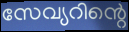
സേവ്യറിന്റെ